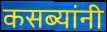
कसब्यांनी